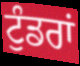
ਟੁੰਡਰਾਂ